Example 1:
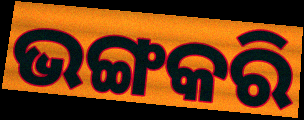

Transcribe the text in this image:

ଭଙ୍ଗକରି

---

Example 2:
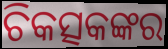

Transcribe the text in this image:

ଚିକତ୍ସକଙ୍କର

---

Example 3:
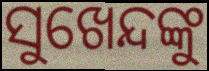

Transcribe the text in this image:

ସୁଖେନ୍ଦଙ୍କୁ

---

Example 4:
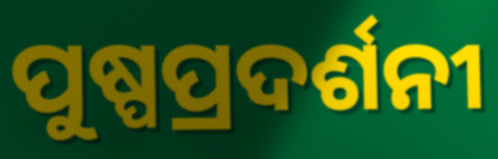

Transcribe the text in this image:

ପୁଷ୍ପପ୍ରଦର୍ଶନୀ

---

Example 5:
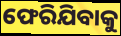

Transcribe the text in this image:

ଫେରିଯିବାକୁ